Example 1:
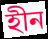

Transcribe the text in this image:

হীন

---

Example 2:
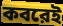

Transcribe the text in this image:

কবরেই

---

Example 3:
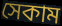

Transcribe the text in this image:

সেকাম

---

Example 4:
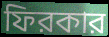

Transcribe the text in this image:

ফিরকার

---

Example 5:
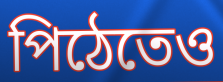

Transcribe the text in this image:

পিঠেতেও